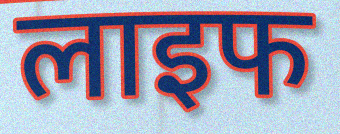
लाइफ